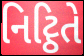
નિટ્ઠિતે